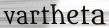
vartheta